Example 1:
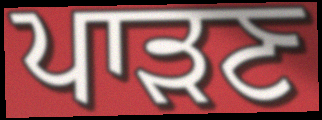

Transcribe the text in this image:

ਪਾੜਣ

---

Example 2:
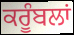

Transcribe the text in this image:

ਕਰੂੰਬਲਾਂ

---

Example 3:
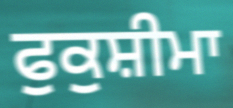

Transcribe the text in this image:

ਫੁਕੁਸ਼ੀਮਾ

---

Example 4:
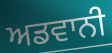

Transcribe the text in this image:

ਅਡਵਾਨੀ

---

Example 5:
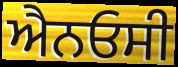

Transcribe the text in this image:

ਐਨਓਸੀ